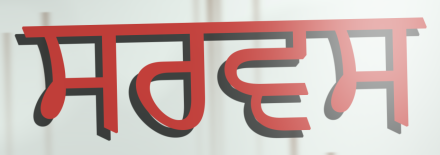
ਸਰਵਸ